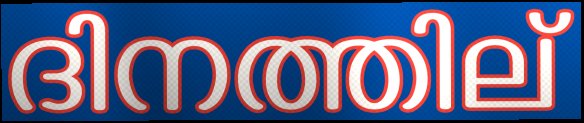
ദിനത്തില്